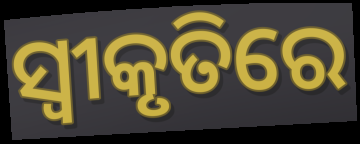
ସ୍ବୀକୃତିରେ